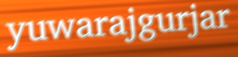
yuwarajgurjar